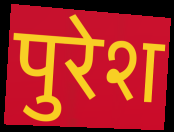
पुरेश